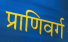
प्राणिवर्ग